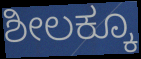
ಶೀಲಕ್ಕೂ